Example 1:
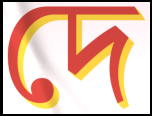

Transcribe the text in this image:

দে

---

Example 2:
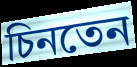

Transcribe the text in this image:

চিনতেন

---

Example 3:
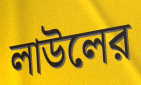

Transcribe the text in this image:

লাউলের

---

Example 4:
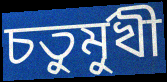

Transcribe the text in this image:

চতুর্মুখী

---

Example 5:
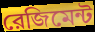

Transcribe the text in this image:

রেজিমেন্ট